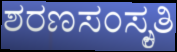
ಶರಣಸಂಸ್ಕೃತಿ